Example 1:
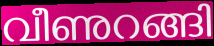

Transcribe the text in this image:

വീണുറങ്ങി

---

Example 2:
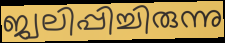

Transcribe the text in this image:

ജ്വലിപ്പിച്ചിരുന്നു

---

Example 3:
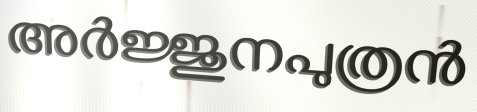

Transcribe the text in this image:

അർജ്ജുനപുത്രൻ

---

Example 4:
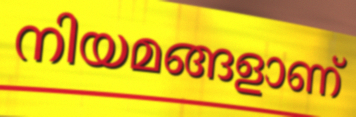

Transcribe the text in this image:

നിയമങ്ങളാണ്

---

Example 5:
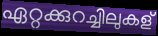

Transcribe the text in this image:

ഏറ്റക്കുറച്ചിലുകള്